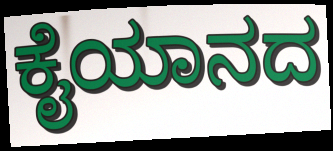
ಕೈಯಾನದ